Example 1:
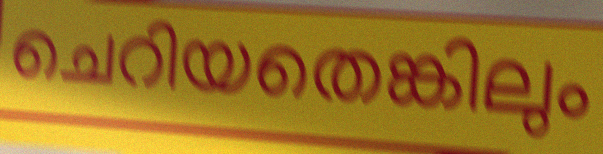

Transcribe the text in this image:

ചെറിയതെങ്കിലും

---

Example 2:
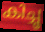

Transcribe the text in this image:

കിച്ചൂ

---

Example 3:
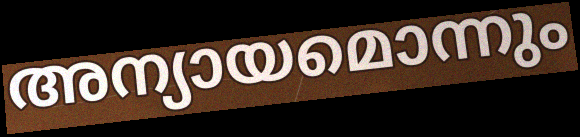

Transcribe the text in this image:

അന്യായമൊന്നും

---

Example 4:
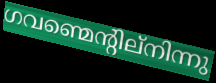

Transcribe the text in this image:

ഗവണ്മെന്റില്നിന്നു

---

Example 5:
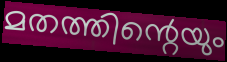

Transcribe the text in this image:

മതത്തിന്റെയും